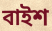
বাইশ